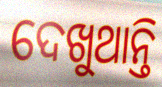
ଦେଖୁଥାନ୍ତି